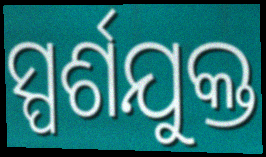
ସ୍ପର୍ଶଯୁକ୍ତ